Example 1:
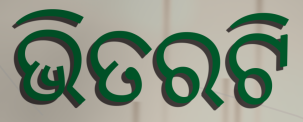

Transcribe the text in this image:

ଭିତରଟି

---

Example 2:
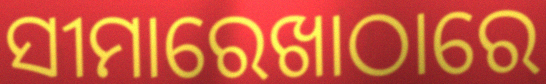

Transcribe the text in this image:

ସୀମାରେଖାଠାରେ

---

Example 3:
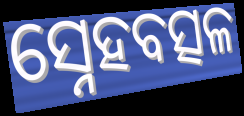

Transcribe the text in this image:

ସ୍ନେହବତ୍ସଳ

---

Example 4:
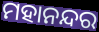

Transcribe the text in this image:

ମହାନନ୍ଦର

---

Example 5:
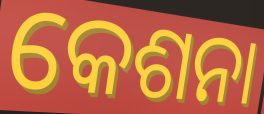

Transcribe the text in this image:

କେଶନା